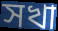
সখা